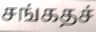
சங்கதச்